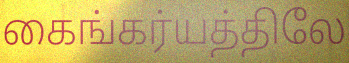
கைங்கர்யத்திலே